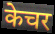
केचर